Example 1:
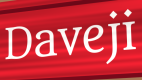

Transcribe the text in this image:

Daveji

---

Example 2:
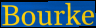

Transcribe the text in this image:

Bourke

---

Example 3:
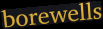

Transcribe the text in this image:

borewells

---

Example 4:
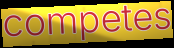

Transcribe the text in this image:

competes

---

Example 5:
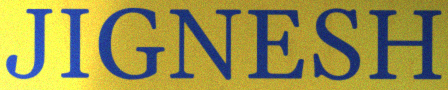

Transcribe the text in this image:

JIGNESH